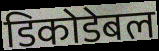
डिकोडेबल